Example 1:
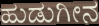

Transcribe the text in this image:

ಹುಡುಗೀನ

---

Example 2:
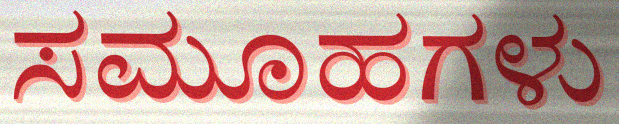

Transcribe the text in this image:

ಸಮೂಹಗಳು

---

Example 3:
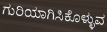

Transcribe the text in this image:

ಗುರಿಯಾಗಿಸಿಕೊಳ್ಳುವ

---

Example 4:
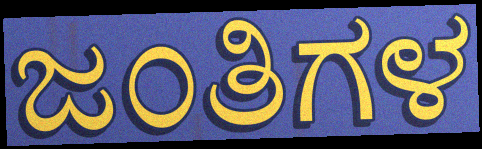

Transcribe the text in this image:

ಜಂತಿಗಳ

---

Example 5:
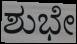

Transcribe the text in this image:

ಶುಭೇ